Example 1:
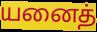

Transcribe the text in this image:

யனைத்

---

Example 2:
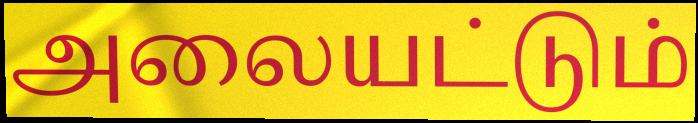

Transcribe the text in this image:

அலையட்டும்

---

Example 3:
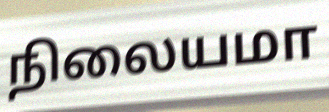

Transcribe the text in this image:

நிலையமா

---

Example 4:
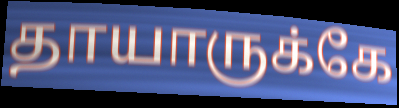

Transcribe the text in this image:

தாயாருக்கே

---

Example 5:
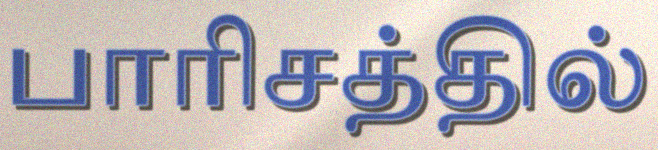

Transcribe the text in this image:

பாரிசத்தில்